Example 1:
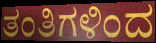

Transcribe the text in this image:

ತಂತಿಗಳಿಂದ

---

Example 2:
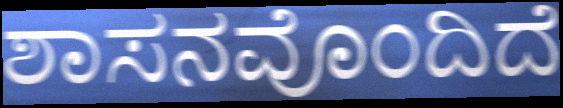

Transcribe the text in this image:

ಶಾಸನವೊಂದಿದೆ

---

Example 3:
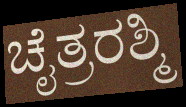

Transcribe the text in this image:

ಚೈತ್ರರಶ್ಮಿ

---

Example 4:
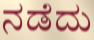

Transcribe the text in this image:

ನಡೆದು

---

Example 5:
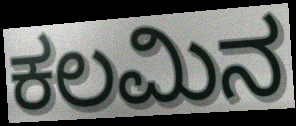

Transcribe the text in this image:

ಕಲಮಿನ